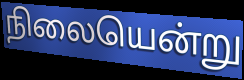
நிலையென்று